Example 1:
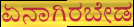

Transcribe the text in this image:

ಏನಾಗಿರಬೇಡ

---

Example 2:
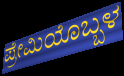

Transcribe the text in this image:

ಪ್ರೇಮಿಯೊಬ್ಬಳ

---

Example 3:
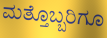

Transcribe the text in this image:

ಮತ್ತೊಬ್ಬರಿಗೂ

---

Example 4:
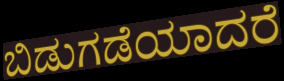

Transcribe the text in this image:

ಬಿಡುಗಡೆಯಾದರೆ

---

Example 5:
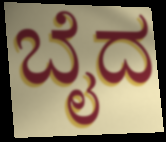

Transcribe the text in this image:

ಬೈದ